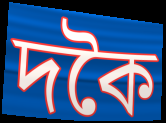
দকৈ